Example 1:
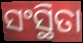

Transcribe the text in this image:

ସଂସ୍ଥିତା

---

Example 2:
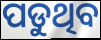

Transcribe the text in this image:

ପଡୁଥିବ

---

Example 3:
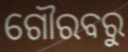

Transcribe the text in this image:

ଗୌରବରୁ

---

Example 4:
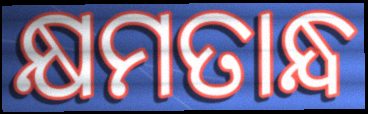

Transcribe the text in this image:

କ୍ଷମତାନ୍ଧ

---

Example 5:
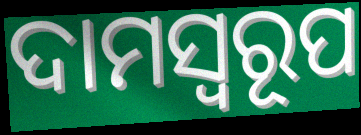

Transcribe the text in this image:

ଦାମସ୍ୱରୂପ